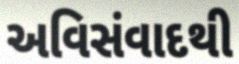
અવિસંવાદથી